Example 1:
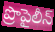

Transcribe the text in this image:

ప్రొపైలీన్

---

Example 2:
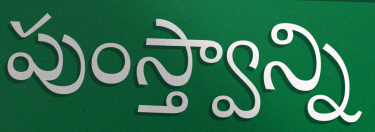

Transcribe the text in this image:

పుంస్త్వాన్ని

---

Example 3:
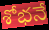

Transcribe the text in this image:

శోభనే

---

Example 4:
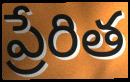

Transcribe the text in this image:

ప్రేరిత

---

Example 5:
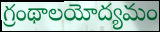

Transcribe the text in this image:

గ్రంథాలయోద్యమం